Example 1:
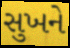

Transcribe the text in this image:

સુખને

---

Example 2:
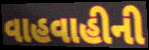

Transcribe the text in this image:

વાહવાહીની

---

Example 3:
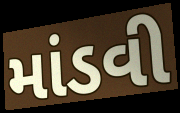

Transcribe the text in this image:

માંડવી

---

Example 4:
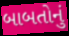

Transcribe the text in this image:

બાબતોનું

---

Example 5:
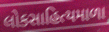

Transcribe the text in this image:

લોકસાહિત્યમાળા